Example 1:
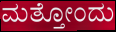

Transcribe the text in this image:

ಮತ್ತೋಂದು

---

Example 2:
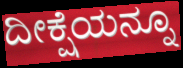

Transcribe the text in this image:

ದೀಕ್ಷೆಯನ್ನೂ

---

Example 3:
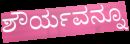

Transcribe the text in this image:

ಶೌರ್ಯವನ್ನೂ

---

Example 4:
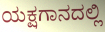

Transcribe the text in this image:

ಯಕ್ಷಗಾನದಲ್ಲಿ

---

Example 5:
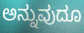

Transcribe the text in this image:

ಅನ್ನುವುದೂ